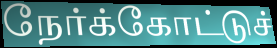
நேர்க்கோட்டுச்